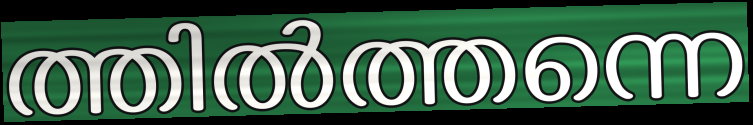
ത്തിൽത്തന്നെ